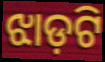
ଝାଡ଼ଟି